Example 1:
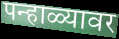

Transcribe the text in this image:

पन्हाळ्यावर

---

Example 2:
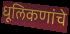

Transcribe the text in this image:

धूलिकणांचे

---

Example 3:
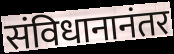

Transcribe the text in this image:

संविधानानंतर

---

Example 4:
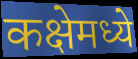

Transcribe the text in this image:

कक्षेमध्ये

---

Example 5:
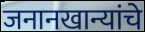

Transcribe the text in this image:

जनानखान्यांचे